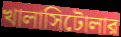
খালাসিটোলার